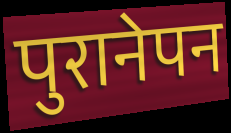
पुरानेपन